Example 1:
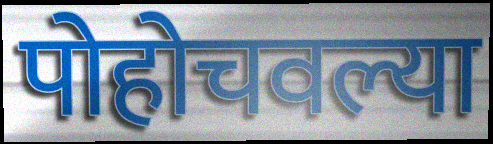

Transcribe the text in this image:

पोहोचवल्या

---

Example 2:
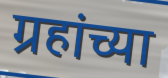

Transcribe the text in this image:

ग्रहांच्या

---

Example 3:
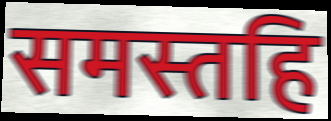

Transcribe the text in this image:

समस्तहि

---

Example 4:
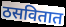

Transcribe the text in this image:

ठसवितात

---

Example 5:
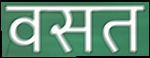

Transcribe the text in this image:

वसत